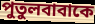
পুতুলবাবাকে